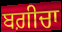
ਬਗ਼ੀਚਾ